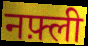
नफ़्ली